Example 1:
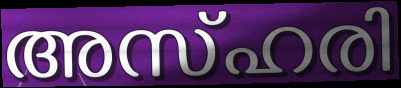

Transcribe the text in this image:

അസ്ഹരി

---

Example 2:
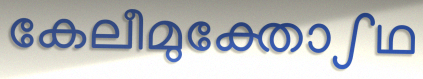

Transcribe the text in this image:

കേലീമുക്തോഽഥ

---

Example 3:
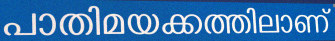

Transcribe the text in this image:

പാതിമയക്കത്തിലാണ്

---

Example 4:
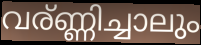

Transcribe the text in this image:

വര്ണ്ണിച്ചാലും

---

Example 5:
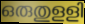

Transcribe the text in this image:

ഒരുതുളളി